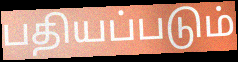
பதியப்படும்